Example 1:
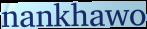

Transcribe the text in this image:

nankhawo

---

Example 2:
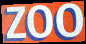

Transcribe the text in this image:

ZOO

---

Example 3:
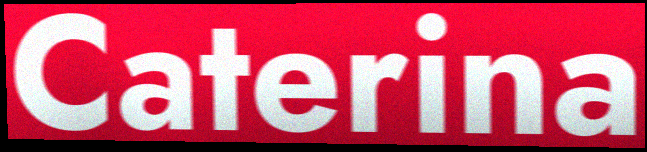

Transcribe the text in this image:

Caterina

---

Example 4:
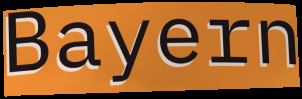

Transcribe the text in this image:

Bayern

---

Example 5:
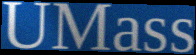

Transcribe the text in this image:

UMass